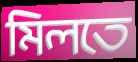
মিলতে